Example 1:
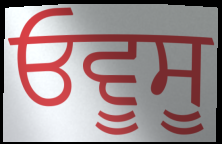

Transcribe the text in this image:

ਓਵੂਸੂ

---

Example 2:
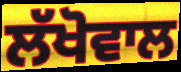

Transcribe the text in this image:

ਲੱਖੋਵਾਲ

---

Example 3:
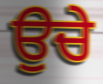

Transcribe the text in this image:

ਉਚੇ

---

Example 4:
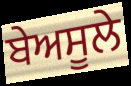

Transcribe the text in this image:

ਬੇਅਸੂਲੇ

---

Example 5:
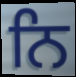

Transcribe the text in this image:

ਨਿ